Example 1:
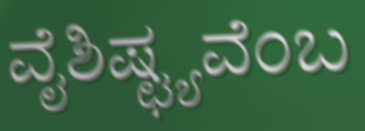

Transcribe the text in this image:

ವೈಶಿಷ್ಟ್ಯವೆಂಬ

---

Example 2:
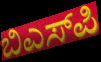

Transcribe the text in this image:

ಬಿಎಸ್‌ಪಿ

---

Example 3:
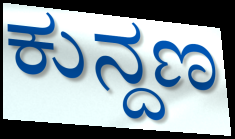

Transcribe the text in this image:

ಕುನ್ದಣ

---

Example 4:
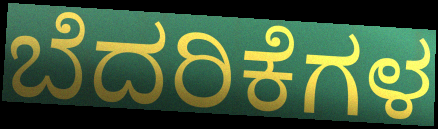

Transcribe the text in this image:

ಬೆದರಿಕೆಗಳ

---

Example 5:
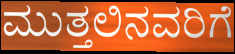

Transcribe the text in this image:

ಮುತ್ತಲಿನವರಿಗೆ